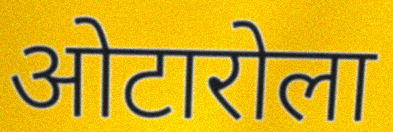
ओटारोला